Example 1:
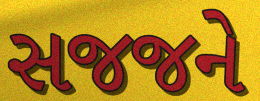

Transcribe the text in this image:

સજજને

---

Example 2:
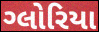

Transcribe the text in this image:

ગ્લોરિયા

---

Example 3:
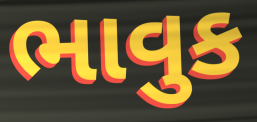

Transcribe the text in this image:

ભાવુક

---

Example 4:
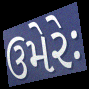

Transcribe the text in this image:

ઉમેરેઃ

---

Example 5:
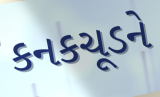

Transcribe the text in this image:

કનકચૂડને